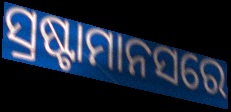
ସ୍ରଷ୍ଟାମାନସରେ